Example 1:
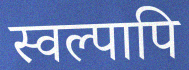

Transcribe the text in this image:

स्वल्पापि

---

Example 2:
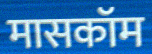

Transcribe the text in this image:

मासकॉम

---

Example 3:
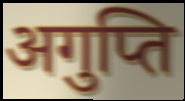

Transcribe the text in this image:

अगुप्ति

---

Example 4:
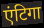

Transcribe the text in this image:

एंटिगा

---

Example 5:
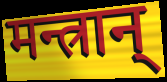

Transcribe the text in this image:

मन्त्रान्